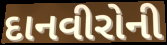
દાનવીરોની